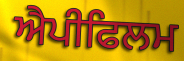
ਐਪੀਫਿਲਮ